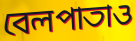
বেলপাতাও